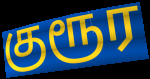
குரூர